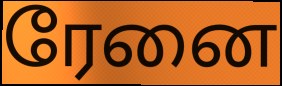
ரேனை